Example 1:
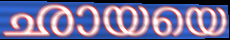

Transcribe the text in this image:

ഛായയെ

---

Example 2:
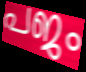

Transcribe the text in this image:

പജം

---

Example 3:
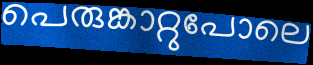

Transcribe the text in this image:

പെരുങ്കാറ്റുപോലെ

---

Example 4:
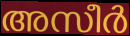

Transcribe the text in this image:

അസീർ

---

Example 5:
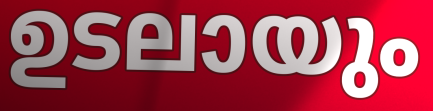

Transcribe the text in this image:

ഉടലായും